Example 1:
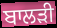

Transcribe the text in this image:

ਬਾਲੜੀ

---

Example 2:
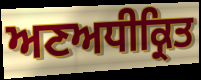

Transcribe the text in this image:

ਅਣਅਧੀਕ੍ਰਿਤ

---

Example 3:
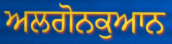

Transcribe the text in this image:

ਅਲਗੋਨਕੁਆਨ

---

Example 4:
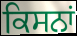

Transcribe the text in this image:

ਕਿਸਨਾਂ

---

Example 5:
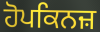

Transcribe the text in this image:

ਹੋਪਕਿਨਜ਼